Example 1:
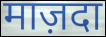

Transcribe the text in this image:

माज़दा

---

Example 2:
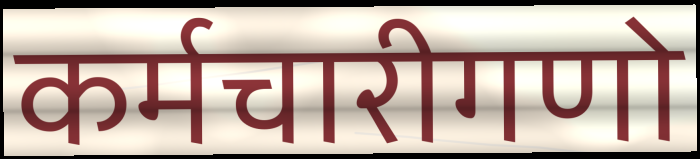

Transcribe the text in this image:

कर्मचारीगणो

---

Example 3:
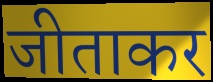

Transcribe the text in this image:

जीताकर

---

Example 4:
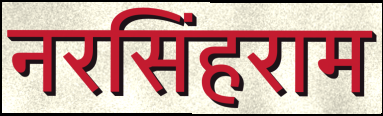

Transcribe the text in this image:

नरसिंहराम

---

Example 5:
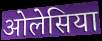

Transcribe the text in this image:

ओलेसिया